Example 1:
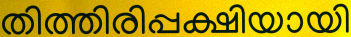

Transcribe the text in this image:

തിത്തിരിപ്പക്ഷിയായി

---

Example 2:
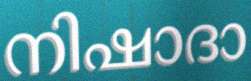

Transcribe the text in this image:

നിഷാദാ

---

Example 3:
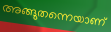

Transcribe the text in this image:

അങ്ങുതന്നെയാണ്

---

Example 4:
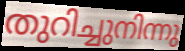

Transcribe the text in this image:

തുറിച്ചുനിന്നു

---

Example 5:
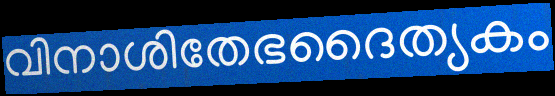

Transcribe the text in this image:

വിനാശിതേഭദൈത്യകം